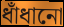
ধাঁধানো